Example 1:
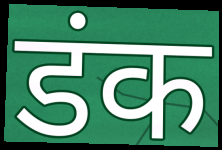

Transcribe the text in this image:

डंक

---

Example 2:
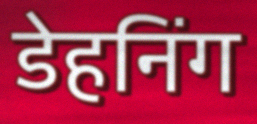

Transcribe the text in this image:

डेहनिंग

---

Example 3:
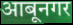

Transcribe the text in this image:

आबूनगर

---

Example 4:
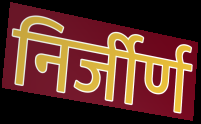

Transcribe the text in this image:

निर्जीर्ण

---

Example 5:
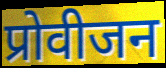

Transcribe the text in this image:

प्रोवीजन